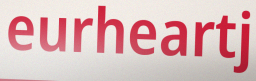
eurheartj